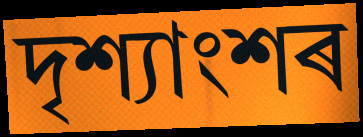
দৃশ্যাংশৰ